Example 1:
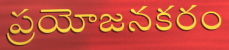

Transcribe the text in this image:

ప్రయోజనకరం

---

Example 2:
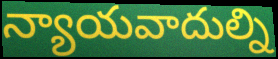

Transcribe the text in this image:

న్యాయవాదుల్ని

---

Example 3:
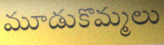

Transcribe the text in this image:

మూడుకొమ్మలు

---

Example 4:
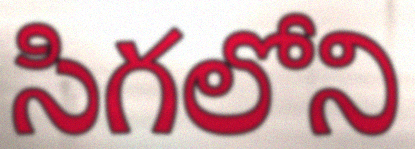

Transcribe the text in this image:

సిగలోని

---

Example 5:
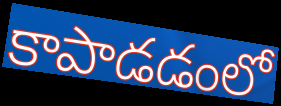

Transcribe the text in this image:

కాపాడడంలో